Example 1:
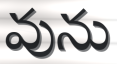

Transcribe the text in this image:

వును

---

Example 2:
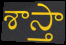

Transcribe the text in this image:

శాస్తా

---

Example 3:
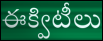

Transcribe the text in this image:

ఈక్విటీలు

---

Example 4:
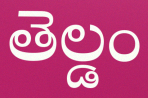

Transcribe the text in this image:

తెల్డం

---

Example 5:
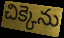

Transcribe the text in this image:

చిక్కెను